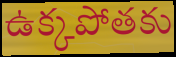
ఉక్కపోతకు